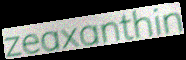
zeaxanthin